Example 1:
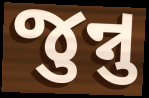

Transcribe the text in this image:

જુન્નુ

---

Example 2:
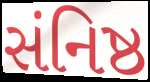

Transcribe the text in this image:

સંનિષ્ઠ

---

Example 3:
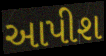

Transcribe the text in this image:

આપીશ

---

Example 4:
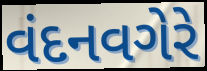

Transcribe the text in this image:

વંદનવગેરે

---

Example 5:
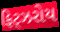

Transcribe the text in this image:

ફિટ્ઝરોય